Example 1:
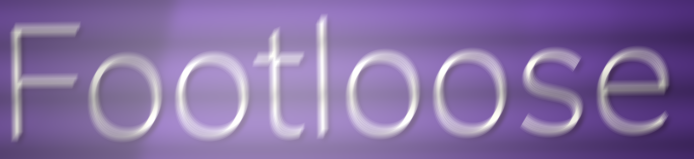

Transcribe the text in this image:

Footloose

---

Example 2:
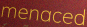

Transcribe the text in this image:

menaced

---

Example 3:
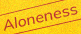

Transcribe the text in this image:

Aloneness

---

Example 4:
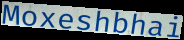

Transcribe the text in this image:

Moxeshbhai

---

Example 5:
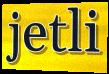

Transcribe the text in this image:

jetli